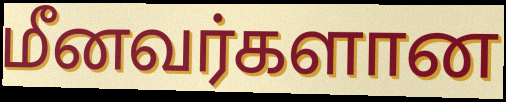
மீனவர்களான